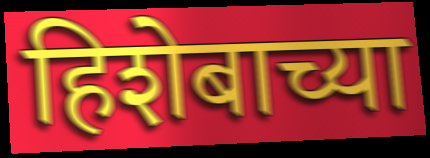
हिशेबाच्या